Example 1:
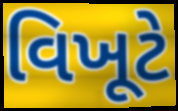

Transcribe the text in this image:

વિખૂટે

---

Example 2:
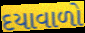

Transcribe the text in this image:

દયાવાળો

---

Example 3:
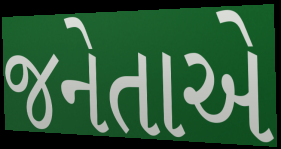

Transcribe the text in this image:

જનેતાએ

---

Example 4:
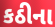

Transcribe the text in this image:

કઠીના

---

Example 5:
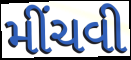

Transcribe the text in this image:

મીંચવી